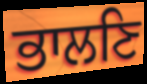
ਭਾਲਣਿ